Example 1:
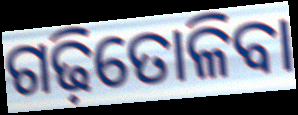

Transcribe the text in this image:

ଗଢ଼ିତୋଳିବା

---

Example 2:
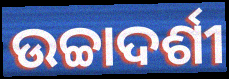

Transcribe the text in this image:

ଉଚ୍ଚାଦର୍ଶୀ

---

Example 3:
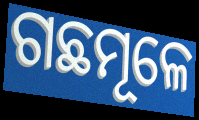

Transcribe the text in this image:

ଗଛମୂଳେ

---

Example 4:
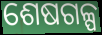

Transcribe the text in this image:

ଶେଷଗଳ୍ପ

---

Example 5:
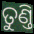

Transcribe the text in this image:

ତୁଣ୍ତି